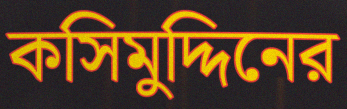
কসিমুদ্দিনের